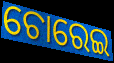
ଚୋରେଇ